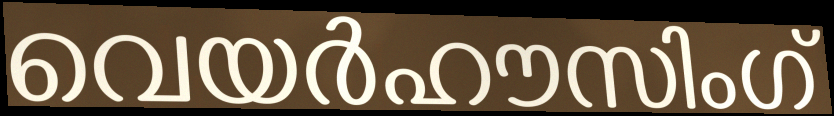
വെയർഹൗസിംഗ്